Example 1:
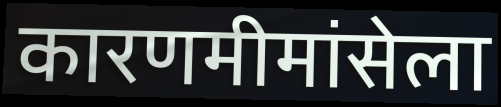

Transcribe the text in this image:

कारणमीमांसेला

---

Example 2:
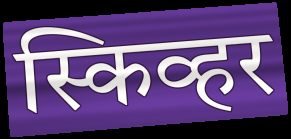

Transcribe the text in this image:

स्किव्हर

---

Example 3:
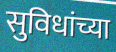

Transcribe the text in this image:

सुविधांच्या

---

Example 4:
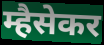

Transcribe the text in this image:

म्हैसेकर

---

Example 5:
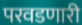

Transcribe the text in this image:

परवडणारी